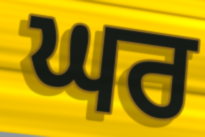
ਘਰ